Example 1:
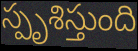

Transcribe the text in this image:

స్పృశిస్తుంది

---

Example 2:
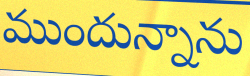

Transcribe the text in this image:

ముందున్నాను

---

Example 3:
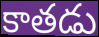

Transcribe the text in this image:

కాతడు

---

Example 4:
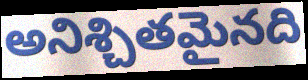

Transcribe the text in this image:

అనిశ్చితమైనది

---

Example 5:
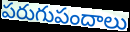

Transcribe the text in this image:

పరుగుపందాలు